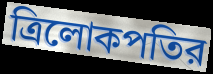
ত্রিলোকপতির